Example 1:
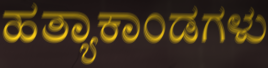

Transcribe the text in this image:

ಹತ್ಯಾಕಾಂಡಗಳು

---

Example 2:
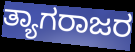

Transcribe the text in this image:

ತ್ಯಾಗರಾಜರ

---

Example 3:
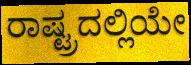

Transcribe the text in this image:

ರಾಷ್ಟ್ರದಲ್ಲಿಯೇ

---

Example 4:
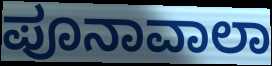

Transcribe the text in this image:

ಪೂನಾವಾಲಾ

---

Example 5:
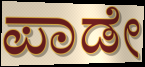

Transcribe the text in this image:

ಪಾಡೇ